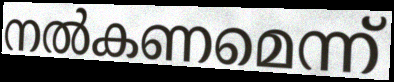
നൽകണമെന്ന്